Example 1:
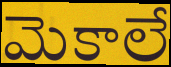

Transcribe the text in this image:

మెకాలే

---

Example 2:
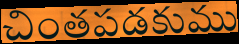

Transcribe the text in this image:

చింతపడకుము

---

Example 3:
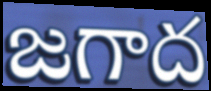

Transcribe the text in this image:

జగాద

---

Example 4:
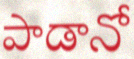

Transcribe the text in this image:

పాడానో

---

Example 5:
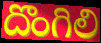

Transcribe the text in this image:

దొంగిలి